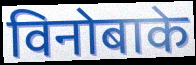
विनोबाके